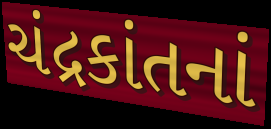
ચંદ્રકાંતનાં